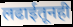
लढाईतूनही